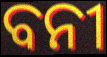
ବନୀ